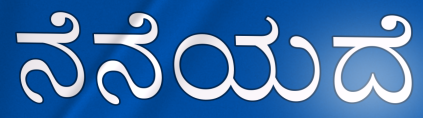
ನೆನೆಯದೆ